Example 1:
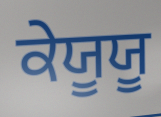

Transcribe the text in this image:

ਕੇਯੂਯੂ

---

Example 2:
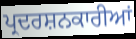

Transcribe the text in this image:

ਪ੍ਰਦਰਸ਼ਨਕਾਰੀਆਂ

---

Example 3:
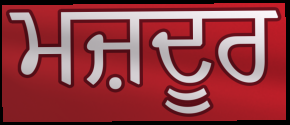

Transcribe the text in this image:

ਮਜ਼ਦੂਰ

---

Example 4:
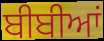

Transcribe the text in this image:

ਬੀਬੀਆਂ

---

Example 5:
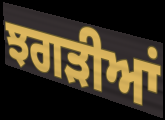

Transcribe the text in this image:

ਝਗੜੀਆਂ